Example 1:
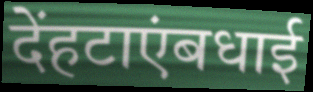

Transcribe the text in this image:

देंहटाएंबधाई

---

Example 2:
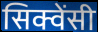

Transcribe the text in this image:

सिक्वेंसी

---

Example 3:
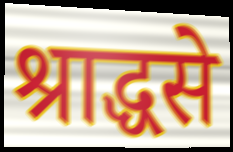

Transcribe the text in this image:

श्राद्धसे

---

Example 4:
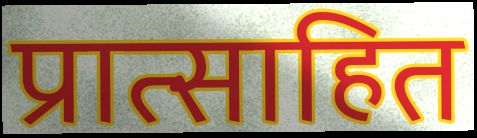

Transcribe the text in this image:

प्रात्साहित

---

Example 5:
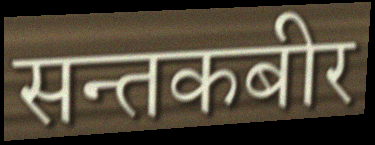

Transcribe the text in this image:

सन्तकबीर